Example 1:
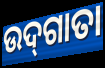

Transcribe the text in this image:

ଉଦ୍‌ଗାତା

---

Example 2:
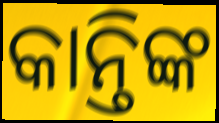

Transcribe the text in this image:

କାନ୍ତିଙ୍କ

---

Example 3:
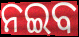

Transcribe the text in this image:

ନଇବ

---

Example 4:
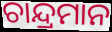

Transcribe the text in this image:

ଚାନ୍ଦ୍ରମାନ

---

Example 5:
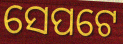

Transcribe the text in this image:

ସେପଟେ